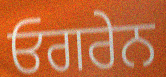
ਓਗਰੇਨ